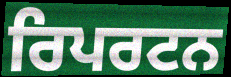
ਰਿਪਰਟਨ